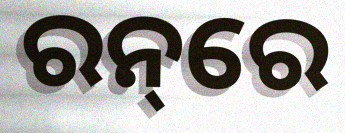
ରନ୍‌ରେ